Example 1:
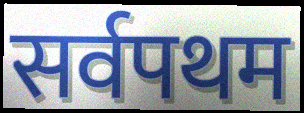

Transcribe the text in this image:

सर्वपथम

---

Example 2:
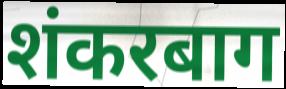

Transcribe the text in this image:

शंकरबाग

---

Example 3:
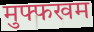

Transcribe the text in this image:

मुफ्फखम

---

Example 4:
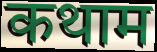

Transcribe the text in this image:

कथाम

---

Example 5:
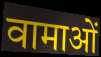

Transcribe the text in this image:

वामाओं